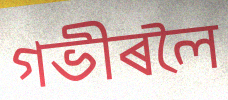
গভীৰলৈ